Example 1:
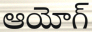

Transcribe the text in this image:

ఆయోగ్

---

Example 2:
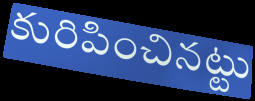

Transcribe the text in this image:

కురిపించినట్టు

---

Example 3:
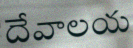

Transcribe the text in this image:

దేవాలయ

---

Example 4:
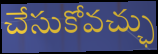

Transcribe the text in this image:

చేసుకోవచ్ఛు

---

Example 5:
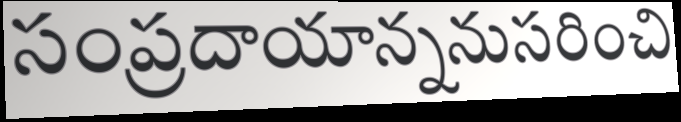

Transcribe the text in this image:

సంప్రదాయాన్ననుసరించి